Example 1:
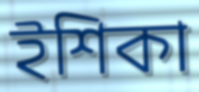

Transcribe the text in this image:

ইশিকা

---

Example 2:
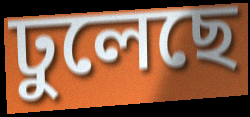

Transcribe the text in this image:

ঢুলেছে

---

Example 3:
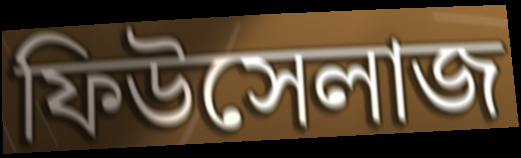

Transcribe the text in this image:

ফিউসেলাজ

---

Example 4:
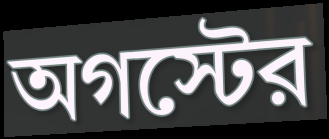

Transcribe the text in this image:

অগস্টের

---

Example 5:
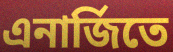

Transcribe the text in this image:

এনার্জিতে